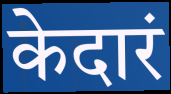
केदारं